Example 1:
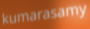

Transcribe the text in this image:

kumarasamy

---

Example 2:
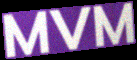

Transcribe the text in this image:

MVM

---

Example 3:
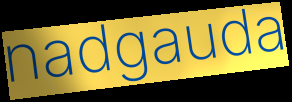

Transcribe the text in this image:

nadgauda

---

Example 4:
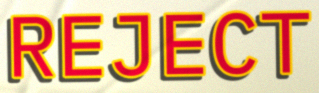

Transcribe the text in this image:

REJECT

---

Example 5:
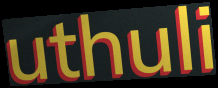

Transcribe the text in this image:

uthuli